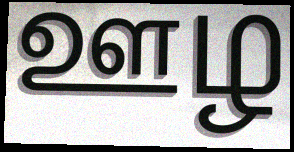
ஊழ